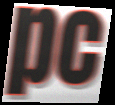
pc